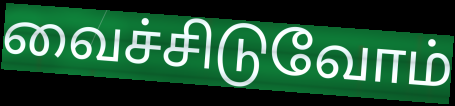
வைச்சிடுவோம்